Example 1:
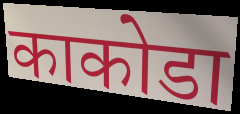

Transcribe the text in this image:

काकोडा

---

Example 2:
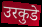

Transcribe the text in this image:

उरकुडे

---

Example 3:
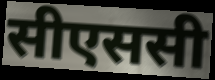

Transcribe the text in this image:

सीएससी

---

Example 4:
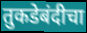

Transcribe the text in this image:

तुकडेबंदीचा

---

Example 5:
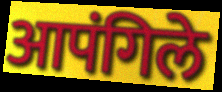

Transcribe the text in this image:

आपंगिले